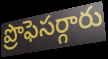
ప్రొఫెసర్గారు